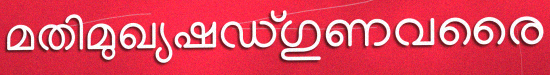
മതിമുഖ്യഷഡ്ഗുണവരൈ